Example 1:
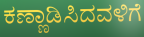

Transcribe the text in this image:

ಕಣ್ಣಾಡಿಸಿದವಳಿಗೆ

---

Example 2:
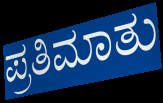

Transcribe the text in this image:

ಪ್ರತಿಮಾತು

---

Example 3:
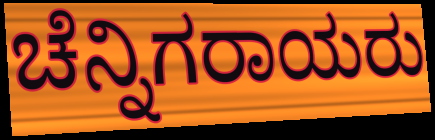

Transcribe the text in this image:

ಚೆನ್ನಿಗರಾಯರು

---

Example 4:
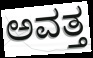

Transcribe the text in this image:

ಅವತ್ತ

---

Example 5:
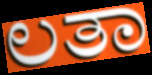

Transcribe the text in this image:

ಲತಾ